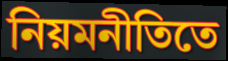
নিয়মনীতিতে